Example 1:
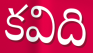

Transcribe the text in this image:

కవిది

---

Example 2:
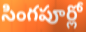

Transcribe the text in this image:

సింగపూర్లో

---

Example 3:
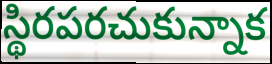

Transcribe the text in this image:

స్థిరపరచుకున్నాక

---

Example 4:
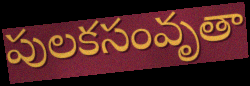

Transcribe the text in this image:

పులకసంవృతా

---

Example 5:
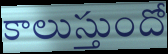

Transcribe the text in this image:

కాలుస్తుందో